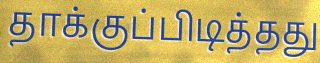
தாக்குப்பிடித்தது